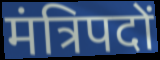
मंत्रिपदों